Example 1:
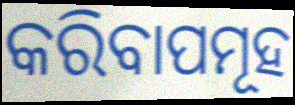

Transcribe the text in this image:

କରିବାପମୂହ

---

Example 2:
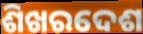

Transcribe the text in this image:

ଶିଖରଦେଶ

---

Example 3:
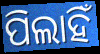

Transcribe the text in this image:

ପିଲାହିଁ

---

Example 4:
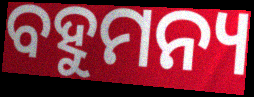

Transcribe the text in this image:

ବହୁମନ୍ୟ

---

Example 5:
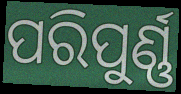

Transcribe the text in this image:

ପରିପୁର୍ଣ୍ଣ